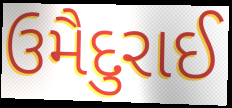
ઉમૈદુરાઈ